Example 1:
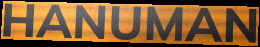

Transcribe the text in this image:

HANUMAN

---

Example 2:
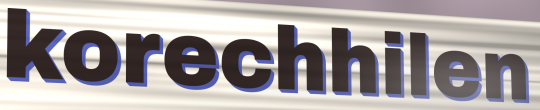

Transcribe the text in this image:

korechhilen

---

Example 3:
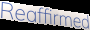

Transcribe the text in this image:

Reaffirmed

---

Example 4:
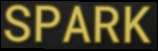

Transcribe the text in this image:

SPARK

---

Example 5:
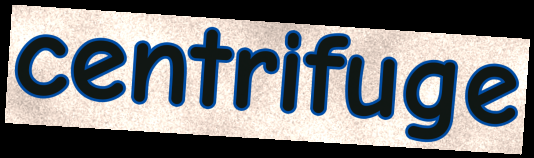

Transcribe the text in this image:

centrifuge